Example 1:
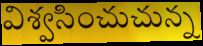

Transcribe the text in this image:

విశ్వసించుచున్న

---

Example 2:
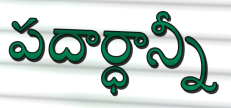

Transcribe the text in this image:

పదార్ధాన్నీ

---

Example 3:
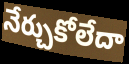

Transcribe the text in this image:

నేర్చుకోలేదా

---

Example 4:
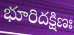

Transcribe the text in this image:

భూరిదక్షిణః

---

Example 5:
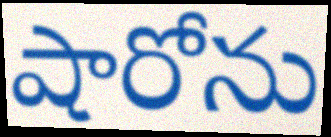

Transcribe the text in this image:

షారోను